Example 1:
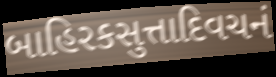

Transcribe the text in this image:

બાહિરકસુત્તાદિવચનં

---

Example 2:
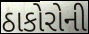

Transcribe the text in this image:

ઠાકોરોની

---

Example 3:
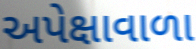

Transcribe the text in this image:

અપેક્ષાવાળા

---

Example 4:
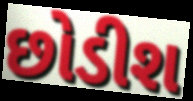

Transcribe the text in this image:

છોડીશ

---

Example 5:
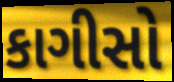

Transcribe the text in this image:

કાગીસો